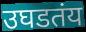
उघडतंय